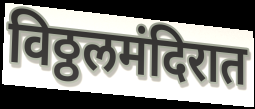
विठ्ठलमंदिरात